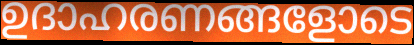
ഉദാഹരണങ്ങളോടെ